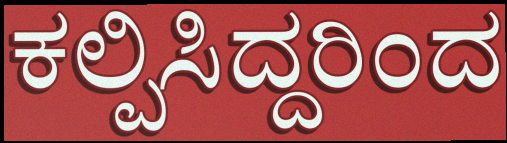
ಕಲ್ಪಿಸಿದ್ದರಿಂದ